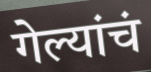
गेल्यांचं